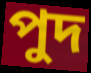
পুদ